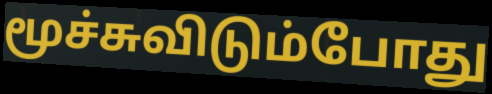
மூச்சுவிடும்போது